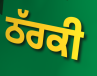
ਠੱਰਕੀ